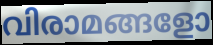
വിരാമങ്ങളോ